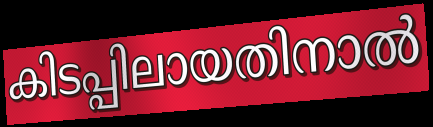
കിടപ്പിലായതിനാൽ